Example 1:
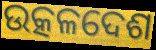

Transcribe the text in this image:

ଉତ୍କଳଦେଶ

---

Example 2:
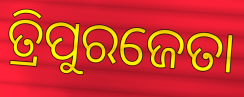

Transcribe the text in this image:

ତ୍ରିପୁରଜେତା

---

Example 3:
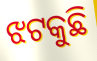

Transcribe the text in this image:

ଝଟକୁଛି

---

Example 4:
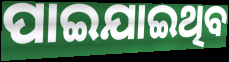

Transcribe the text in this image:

ପାଇଯାଇଥିବ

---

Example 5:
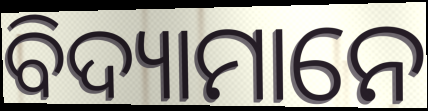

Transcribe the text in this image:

ବିଦ୍ୟାମାନେ